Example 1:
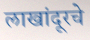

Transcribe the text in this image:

लाखांदूरचे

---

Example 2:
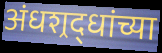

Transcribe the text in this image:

अंधश्रद्धांच्या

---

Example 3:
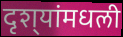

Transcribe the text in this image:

दृश्यांमधली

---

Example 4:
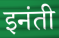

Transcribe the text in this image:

इनंती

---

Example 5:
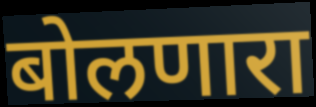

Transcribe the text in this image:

बोलणारा